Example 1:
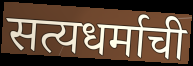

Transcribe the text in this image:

सत्यधर्माची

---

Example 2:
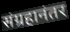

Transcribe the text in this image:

संग्रहानंतर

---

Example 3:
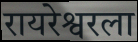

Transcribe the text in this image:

रायरेश्वरला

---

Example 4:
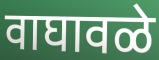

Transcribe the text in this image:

वाघावळे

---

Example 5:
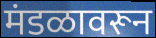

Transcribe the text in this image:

मंडळावरून